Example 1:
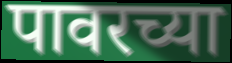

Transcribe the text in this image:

पावरच्या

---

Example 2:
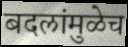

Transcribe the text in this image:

बदलांमुळेच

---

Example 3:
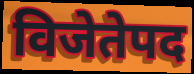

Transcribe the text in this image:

विजेतेपद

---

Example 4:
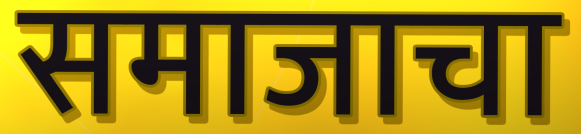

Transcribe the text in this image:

समाजाचा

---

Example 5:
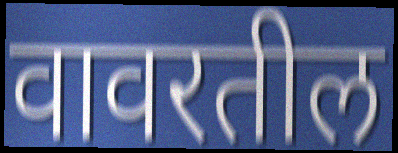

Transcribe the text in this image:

वावरतील